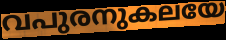
വപുരനുകലയേ